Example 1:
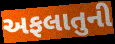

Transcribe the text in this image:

અફલાતુની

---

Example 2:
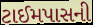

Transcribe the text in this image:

ટાઈમપાસની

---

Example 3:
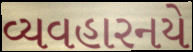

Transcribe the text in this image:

વ્યવહારનયે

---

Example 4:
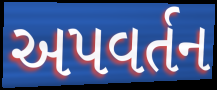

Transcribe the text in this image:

અપવર્તન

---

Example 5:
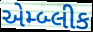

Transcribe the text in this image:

એમ્બ્લીક